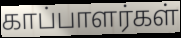
காப்பாளர்கள்